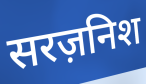
सरज़निश